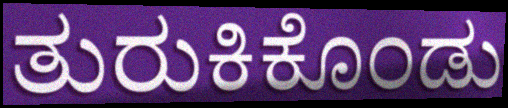
ತುರುಕಿಕೊಂಡು